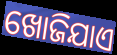
ଖୋଜିଯାଏ